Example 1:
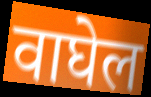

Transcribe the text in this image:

वाघेल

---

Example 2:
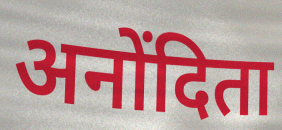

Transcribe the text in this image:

अनोंदिता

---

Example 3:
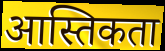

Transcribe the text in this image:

आस्तिकता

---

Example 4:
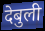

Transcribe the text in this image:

देबुली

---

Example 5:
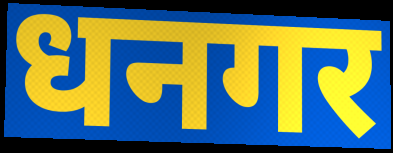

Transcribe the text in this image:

धनगर